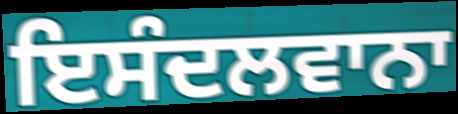
ਇਸੰਦਲਵਾਨਾ